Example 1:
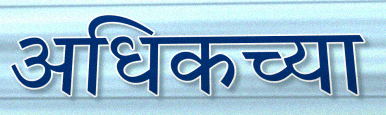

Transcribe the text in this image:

अधिकच्या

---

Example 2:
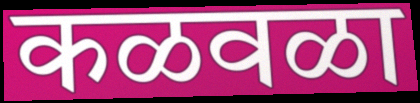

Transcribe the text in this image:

कळवळा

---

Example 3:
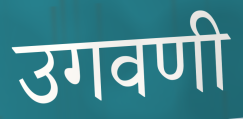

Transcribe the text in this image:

उगवणी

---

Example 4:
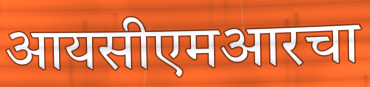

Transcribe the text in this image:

आयसीएमआरचा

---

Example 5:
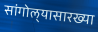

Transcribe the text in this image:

सांगोल्यासारख्या